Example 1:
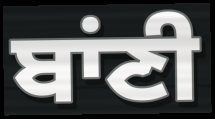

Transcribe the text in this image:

ਬਾਂਣੀ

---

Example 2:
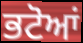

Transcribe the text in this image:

ਭਟੋਆਂ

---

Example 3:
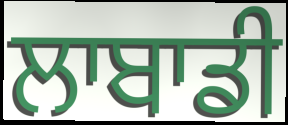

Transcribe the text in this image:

ਲਾਬਾਡੀ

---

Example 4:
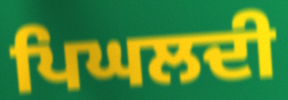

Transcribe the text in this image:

ਪਿਘਲਦੀ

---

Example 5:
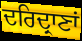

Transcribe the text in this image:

ਦਰਿਦ੍ਰਾਣਾਂ